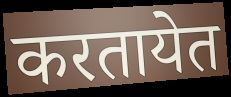
करतायेत